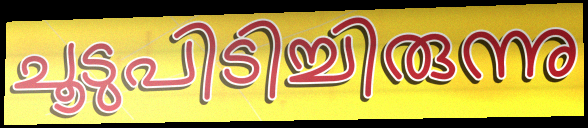
ചൂടുപിടിച്ചിരുന്നു